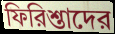
ফিরিশ্তাদের